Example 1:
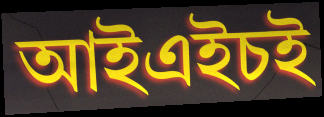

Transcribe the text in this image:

আইএইচই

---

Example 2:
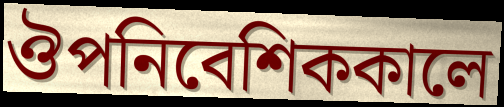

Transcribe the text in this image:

ঔপনিবেশিককালে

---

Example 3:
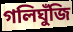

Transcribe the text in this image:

গলিঘুঁজি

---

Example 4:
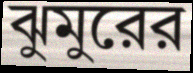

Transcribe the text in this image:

ঝুমুরের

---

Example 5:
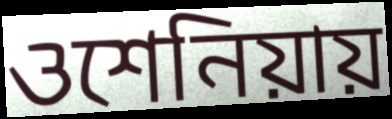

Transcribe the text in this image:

ওশেনিয়ায়